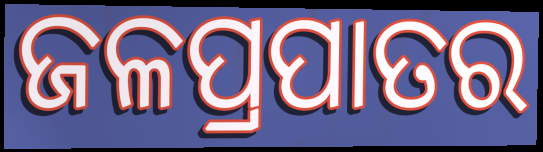
ଜଳପ୍ରପାତର